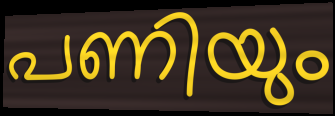
പണിയും